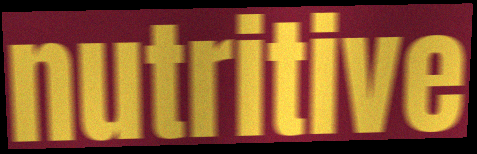
nutritive